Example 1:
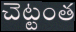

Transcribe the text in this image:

చెట్టంత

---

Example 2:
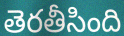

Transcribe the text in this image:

తెరతీసింది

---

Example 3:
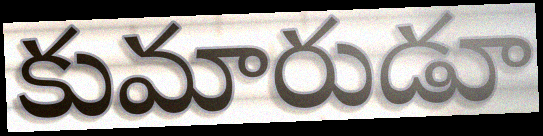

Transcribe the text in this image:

కుమారుడూ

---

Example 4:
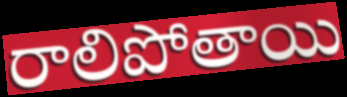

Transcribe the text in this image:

రాలిపోతాయి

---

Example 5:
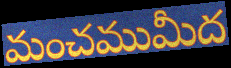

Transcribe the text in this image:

మంచముమీద